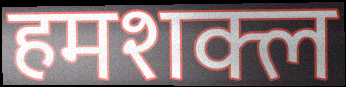
हमशक्ल